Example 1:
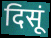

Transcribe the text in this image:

दिसूं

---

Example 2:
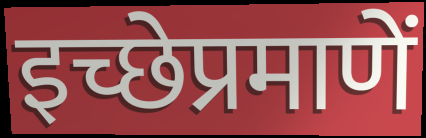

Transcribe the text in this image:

इच्छेप्रमाणें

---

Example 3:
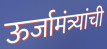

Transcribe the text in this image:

ऊर्जामंत्र्यांची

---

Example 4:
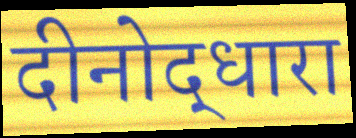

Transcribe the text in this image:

दीनोद्धारा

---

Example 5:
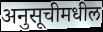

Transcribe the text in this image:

अनुसूचीमधील